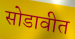
सोडावीत